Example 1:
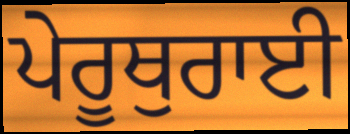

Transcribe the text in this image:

ਪੇਰੂਥੁਰਾਈ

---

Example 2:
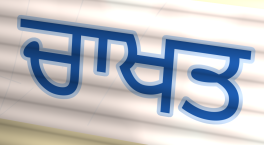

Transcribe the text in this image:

ਚਾਖਤ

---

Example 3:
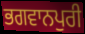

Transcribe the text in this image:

ਭਗਵਾਨਪੁਰੀ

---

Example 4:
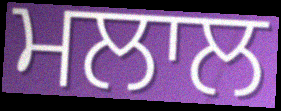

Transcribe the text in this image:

ਮਲਾਲ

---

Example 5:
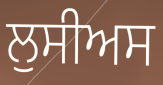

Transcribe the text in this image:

ਲੁਸੀਅਸ